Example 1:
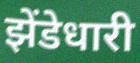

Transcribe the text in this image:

झेंडेधारी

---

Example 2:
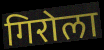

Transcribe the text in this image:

गिरोला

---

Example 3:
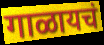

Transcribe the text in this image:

गाळायचं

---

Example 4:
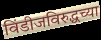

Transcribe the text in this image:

विंडीजविरुद्धच्या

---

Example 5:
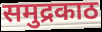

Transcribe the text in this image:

समुद्रकाठ